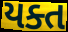
યક્ત